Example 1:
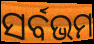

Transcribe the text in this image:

ସର୍ବଭମ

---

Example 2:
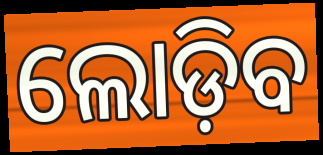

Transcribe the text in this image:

ଲୋଡ଼ିବ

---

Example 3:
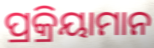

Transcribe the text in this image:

ପ୍ରକ୍ରିୟାମାନ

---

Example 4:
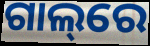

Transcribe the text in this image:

ଗାଲ୍‌ରେ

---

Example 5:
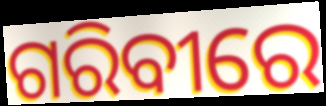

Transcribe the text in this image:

ଗରିବୀରେ